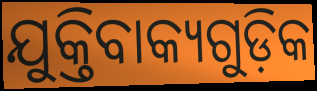
ଯୁକ୍ତିବାକ୍ୟଗୁଡ଼ିକ